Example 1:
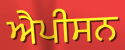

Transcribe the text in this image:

ਐਪੀਸਨ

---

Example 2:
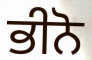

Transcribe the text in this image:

ਭੀਨੋ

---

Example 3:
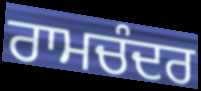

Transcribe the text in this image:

ਰਾਮਚੰਦਰ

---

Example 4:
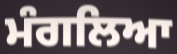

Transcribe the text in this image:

ਮੰਗਲਿਆ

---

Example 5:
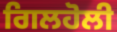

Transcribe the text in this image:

ਗਿਲਹੋਲੀ